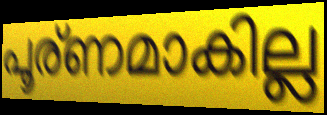
പൂര്ണമാകില്ല